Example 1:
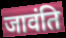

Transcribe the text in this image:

जावंति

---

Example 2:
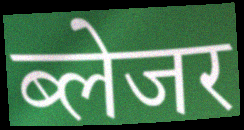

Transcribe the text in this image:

ब्लेजर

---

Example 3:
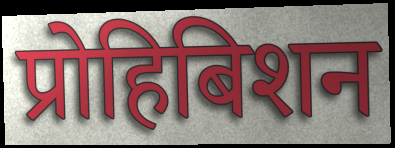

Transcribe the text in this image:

प्रोहिबिशन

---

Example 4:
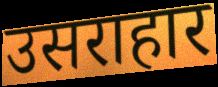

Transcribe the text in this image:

उसराहार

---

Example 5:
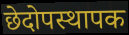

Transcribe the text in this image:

छेदोपस्थापक